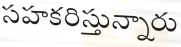
సహకరిస్తున్నారు